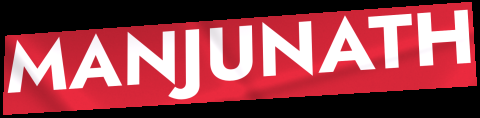
MANJUNATH